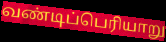
வண்டிப்பெரியாறு